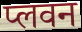
प्लवन